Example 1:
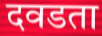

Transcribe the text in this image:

दवडता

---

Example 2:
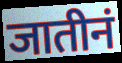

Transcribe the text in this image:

जातीनं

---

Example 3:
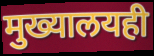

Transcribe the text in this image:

मुख्यालयही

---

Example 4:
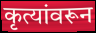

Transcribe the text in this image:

कृत्यांवरून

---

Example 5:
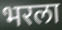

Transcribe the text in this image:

भरला